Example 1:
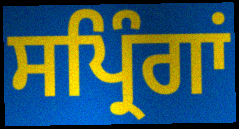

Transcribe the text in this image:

ਸਪ੍ਰਿੰਗਾਂ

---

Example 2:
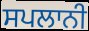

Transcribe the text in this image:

ਸਪਲਾਨੀ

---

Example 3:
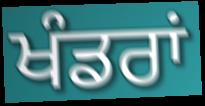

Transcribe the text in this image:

ਖੰਡਰਾਂ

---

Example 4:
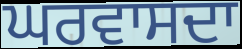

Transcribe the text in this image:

ਘਰਵਾਸਦਾ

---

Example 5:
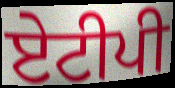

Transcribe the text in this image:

ਏਟੀਪੀ